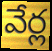
వేర్ల